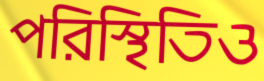
পরিস্থিতিও